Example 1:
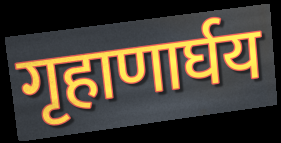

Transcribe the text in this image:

गृहाणार्घय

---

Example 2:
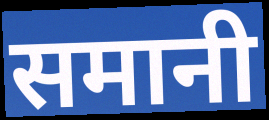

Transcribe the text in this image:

समानी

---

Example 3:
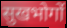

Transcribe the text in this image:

सुखभोगों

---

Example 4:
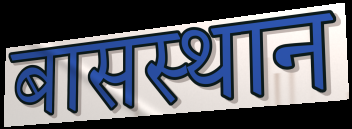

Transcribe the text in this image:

बासस्थान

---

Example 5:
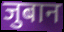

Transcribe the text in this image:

जुबान